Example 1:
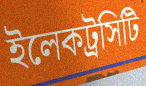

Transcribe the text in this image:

ইলেকট্রসিটি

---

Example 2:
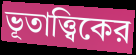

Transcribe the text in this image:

ভূতাত্ত্বিকের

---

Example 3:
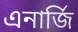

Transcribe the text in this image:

এনার্জি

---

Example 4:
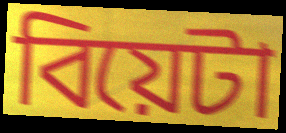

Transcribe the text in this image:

বিয়েটা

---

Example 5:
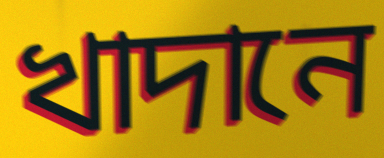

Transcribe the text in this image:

খাদানে